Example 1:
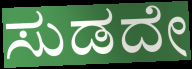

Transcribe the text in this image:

ಸುಡದೇ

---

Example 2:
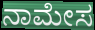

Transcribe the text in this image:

ನಾಮೇಸ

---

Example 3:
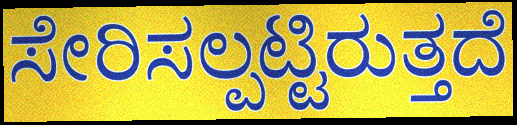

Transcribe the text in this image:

ಸೇರಿಸಲ್ಪಟ್ಟಿರುತ್ತದೆ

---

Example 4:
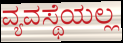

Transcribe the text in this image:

ವ್ಯವಸ್ಥೆಯಲ್ಲ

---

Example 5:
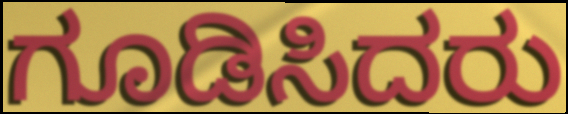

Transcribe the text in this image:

ಗೂಡಿಸಿದರು